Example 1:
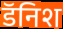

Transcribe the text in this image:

डॅनिश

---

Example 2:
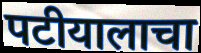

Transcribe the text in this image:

पटीयालाचा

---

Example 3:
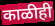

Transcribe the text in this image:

काळीही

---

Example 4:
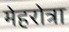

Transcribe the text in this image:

मेहरोत्रा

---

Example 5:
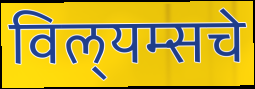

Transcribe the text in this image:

विल्यम्सचे